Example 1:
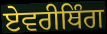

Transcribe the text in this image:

ਏਵਰੀਥਿੰਗ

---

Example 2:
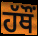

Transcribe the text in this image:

ਹੱਥੌਂ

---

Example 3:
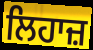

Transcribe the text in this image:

ਲਿਹਾਜ਼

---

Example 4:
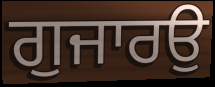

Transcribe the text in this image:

ਗੁਜਾਰਉ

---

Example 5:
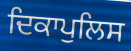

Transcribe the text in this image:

ਦਿਕਾਪੁਲਿਸ